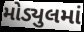
મોડ્યુલમાં